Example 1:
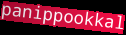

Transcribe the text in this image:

panippookkal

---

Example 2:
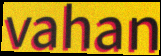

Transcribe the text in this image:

vahan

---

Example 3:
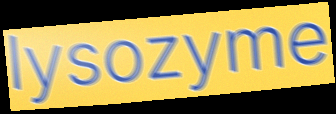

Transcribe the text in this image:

lysozyme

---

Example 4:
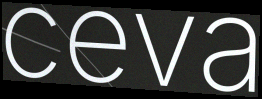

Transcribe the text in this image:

ceva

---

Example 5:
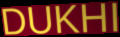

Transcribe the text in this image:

DUKHI